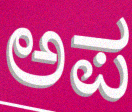
ಅಪ